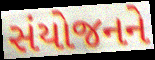
સંયોજનને